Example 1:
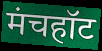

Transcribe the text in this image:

मंचहॉट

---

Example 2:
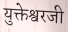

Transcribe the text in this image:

युक्तेश्वरजी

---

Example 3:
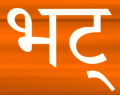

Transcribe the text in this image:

भट्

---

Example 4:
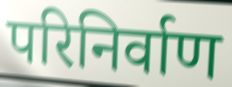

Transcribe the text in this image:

परिनिर्वाण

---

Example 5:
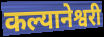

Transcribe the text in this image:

कल्यानेश्वरी